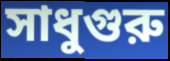
সাধুগুরু